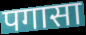
पगासा